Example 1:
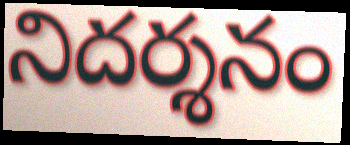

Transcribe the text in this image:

నిదర్శనం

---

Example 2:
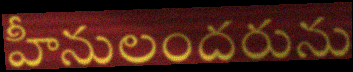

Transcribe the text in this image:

హీనులందరును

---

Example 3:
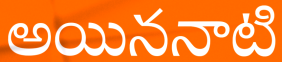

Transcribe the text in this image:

అయిననాటి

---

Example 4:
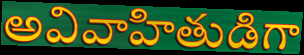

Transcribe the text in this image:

అవివాహితుడిగా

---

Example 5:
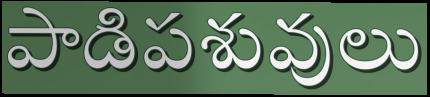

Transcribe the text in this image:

పాడిపశువులు